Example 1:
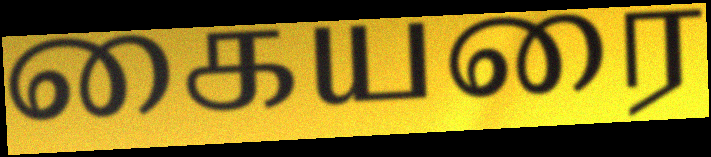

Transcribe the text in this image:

கையரை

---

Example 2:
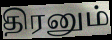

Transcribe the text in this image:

திரனும்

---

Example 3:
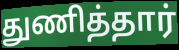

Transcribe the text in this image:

துணித்தார்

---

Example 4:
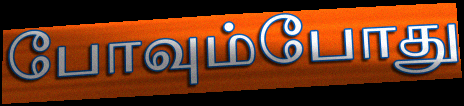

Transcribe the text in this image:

போவும்போது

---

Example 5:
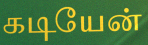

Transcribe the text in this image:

கடியேன்